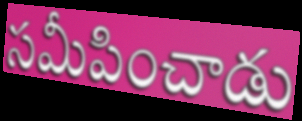
సమీపించాడు